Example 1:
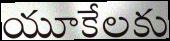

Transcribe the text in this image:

యూకేలకు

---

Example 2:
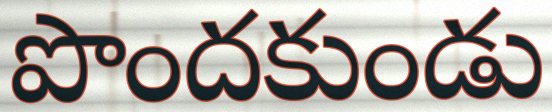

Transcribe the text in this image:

పొందకుండు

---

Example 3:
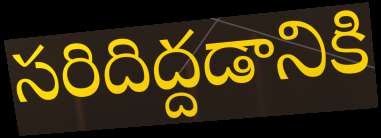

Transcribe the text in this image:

సరిదిద్దడానికి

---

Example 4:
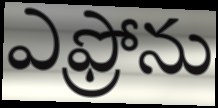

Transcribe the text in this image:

ఎఫ్రోను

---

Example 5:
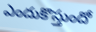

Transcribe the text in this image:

ఎందుకొస్తుందో